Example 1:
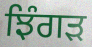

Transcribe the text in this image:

ਝਿੰਗੜ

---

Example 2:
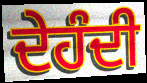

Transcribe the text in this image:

ਦੇਹੰਦੀ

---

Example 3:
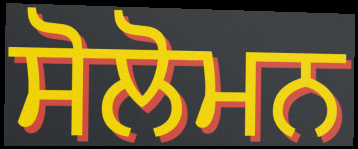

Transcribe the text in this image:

ਸੋਲੋਮਨ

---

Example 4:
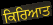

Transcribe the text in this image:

ਕਿਰਿਆਤ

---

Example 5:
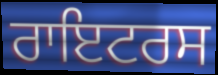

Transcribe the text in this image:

ਰਾਇਟਰਸ